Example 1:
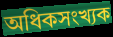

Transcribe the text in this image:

অধিকসংখ্যক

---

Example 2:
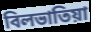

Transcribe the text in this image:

বিলভাতিয়া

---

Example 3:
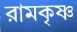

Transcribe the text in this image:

রামকৃষ্ণ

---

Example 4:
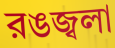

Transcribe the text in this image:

রঙজ্বলা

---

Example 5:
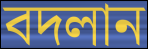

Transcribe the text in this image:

বদলান